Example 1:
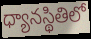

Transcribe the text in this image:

ధ్యానస్థితిలో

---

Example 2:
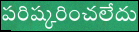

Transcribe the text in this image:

పరిష్కరించలేదు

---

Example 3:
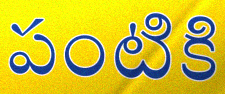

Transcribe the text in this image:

పంటికి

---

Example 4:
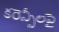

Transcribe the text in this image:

కరెన్సీలపై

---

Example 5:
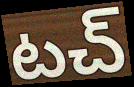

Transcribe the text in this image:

టచ్